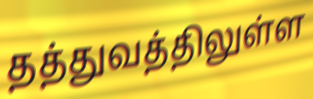
தத்துவத்திலுள்ள